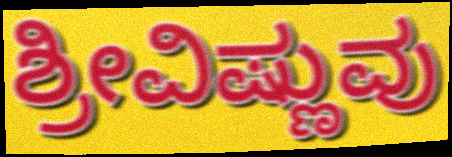
ಶ್ರೀವಿಷ್ಣುವು